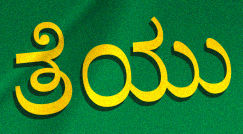
ತೆಯು